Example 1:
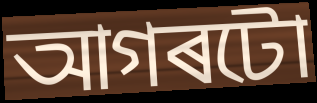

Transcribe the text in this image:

আগৰটো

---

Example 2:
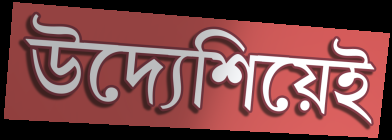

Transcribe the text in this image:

উদ্যেশিয়েই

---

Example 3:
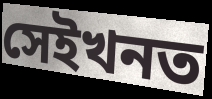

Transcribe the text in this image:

সেইখনত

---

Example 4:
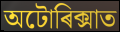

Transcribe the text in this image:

অটোৰিক্সাত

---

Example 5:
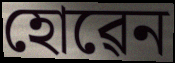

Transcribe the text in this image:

হোৱেন